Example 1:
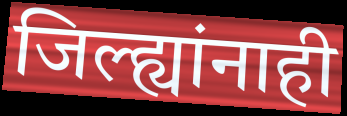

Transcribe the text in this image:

जिल्ह्यांनाही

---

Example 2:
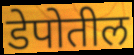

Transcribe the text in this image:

डेपोतील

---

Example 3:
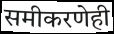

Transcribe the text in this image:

समीकरणेही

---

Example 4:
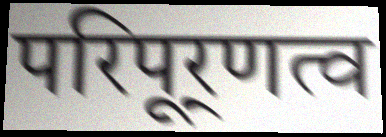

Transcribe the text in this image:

परिपूर्णत्व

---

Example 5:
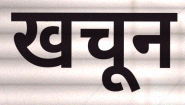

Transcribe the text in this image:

खचून